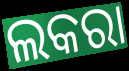
ଲକରା